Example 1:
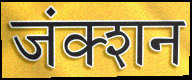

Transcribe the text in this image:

जंक्शन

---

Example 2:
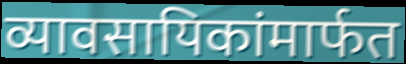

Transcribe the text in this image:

व्यावसायिकांमार्फत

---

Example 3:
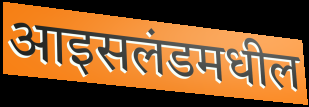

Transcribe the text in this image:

आइसलंडमधील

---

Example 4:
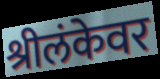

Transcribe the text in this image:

श्रीलंकेवर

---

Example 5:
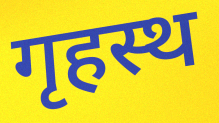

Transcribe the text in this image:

गृहस्थ